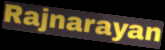
Rajnarayan